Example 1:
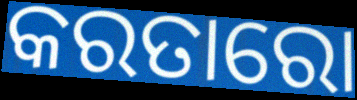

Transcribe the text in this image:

କରତାରୋ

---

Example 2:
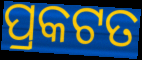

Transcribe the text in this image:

ପ୍ରକଟତ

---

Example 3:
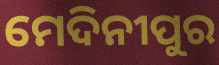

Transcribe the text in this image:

ମେଦିନୀପୁର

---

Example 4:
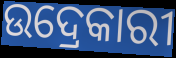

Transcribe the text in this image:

ଉଦ୍ରେକାରୀ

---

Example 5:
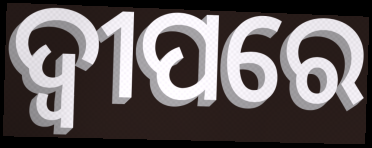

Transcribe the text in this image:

ଦ୍ୱୀପରେ